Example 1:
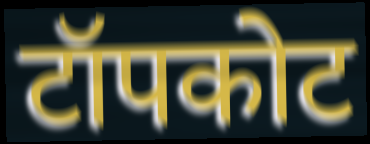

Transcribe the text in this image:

टॉपकोट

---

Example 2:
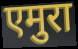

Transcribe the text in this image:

एमुरा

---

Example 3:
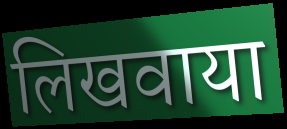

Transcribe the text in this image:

लिखवाया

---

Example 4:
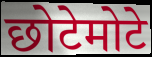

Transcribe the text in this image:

छोटेमोटे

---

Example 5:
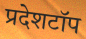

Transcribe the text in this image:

प्रदेशटॉप